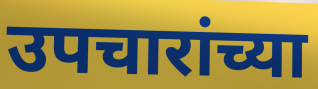
उपचारांच्या